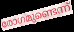
രോഗമുണ്ടെന്ന്